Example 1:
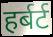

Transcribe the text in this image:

हर्बर्ट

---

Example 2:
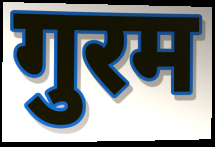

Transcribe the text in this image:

गुरम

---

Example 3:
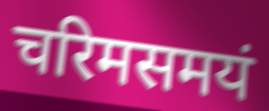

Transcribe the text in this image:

चरिमसमयं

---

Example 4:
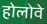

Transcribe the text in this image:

होलोवे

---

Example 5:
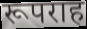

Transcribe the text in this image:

रूपराह